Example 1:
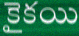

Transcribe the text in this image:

కైకయి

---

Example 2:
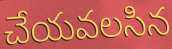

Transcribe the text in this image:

చేయవలసిన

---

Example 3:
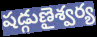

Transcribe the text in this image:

షడ్గుణైశ్వర్య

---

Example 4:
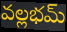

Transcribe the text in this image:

వల్లభమ్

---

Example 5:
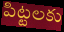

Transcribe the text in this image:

పిట్టలకు